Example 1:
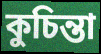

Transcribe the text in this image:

কুচিন্তা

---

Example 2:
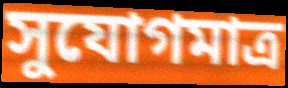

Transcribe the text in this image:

সুযোগমাত্র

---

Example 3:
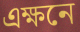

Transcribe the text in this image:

এক্ষনে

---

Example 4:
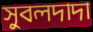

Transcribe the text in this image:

সুবলদাদা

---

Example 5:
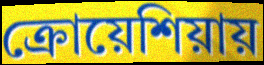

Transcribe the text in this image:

ক্রোয়েশিয়ায়